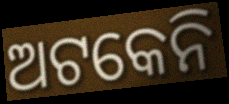
ଅଟକେନି